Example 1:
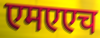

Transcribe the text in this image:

एमएएच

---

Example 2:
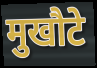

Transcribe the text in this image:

मुखौटे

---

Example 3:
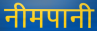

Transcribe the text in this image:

नीमपानी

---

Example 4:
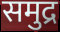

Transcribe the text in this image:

समुद्र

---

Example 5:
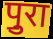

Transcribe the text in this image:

पु॒रा